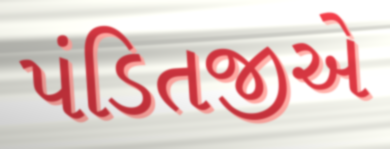
પંડિતજીએ